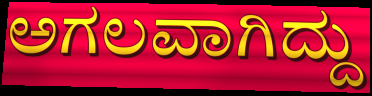
ಅಗಲವಾಗಿದ್ದು